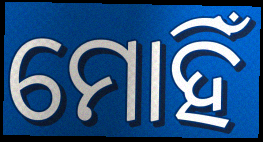
ମୋହିଁ